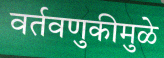
वर्तवणुकीमुळे